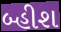
બ્હીશ